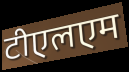
टीएलएम